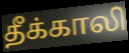
தீக்காலி